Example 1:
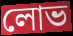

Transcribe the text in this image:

লোভ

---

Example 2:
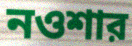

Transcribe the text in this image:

নওশার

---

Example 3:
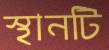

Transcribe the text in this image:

স্থানটি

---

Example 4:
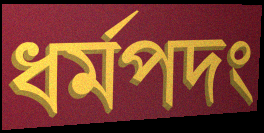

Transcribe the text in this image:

ধর্মপদং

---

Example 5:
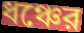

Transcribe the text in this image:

ধঞ্চের